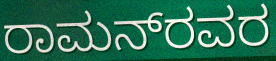
ರಾಮನ್‌ರವರ